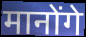
मानोंगे